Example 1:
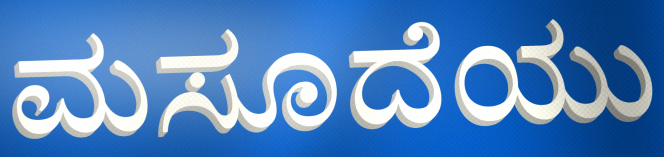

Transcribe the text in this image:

ಮಸೂದೆಯು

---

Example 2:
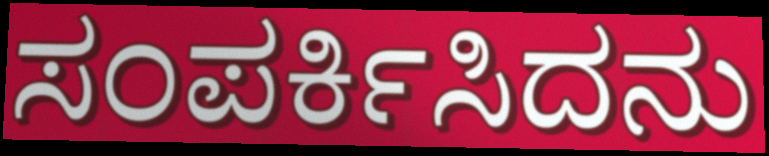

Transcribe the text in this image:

ಸಂಪರ್ಕಿಸಿದನು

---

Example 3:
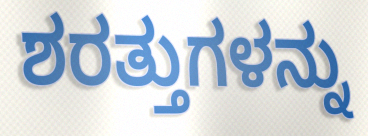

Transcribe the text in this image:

ಶರತ್ತುಗಳನ್ನು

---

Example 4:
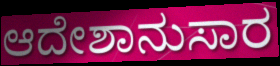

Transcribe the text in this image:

ಆದೇಶಾನುಸಾರ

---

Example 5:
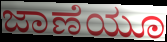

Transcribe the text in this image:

ಜಾಣೆಯೂ